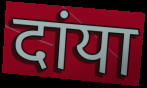
दांया